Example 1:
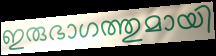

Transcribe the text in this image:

ഇരുഭാഗത്തുമായി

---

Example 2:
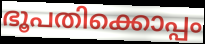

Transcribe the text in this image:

ഭൂപതിക്കൊപ്പം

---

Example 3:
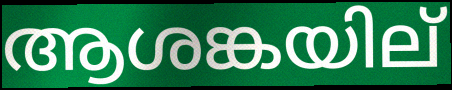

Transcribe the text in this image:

ആശങ്കയില്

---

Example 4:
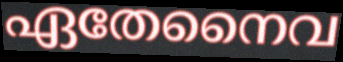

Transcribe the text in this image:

ഏതേനൈവ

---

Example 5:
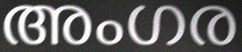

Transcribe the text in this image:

അംഗര